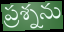
ప్రశ్నను